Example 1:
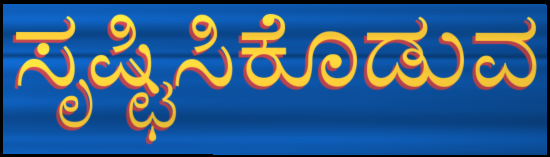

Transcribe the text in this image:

ಸೃಷ್ಟಿಸಿಕೊಡುವ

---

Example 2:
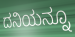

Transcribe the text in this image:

ದನಿಯನ್ನೂ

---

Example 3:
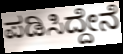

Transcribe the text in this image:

ಪಡಿಸಿದ್ದೇನೆ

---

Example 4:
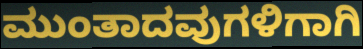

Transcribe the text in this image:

ಮುಂತಾದವುಗಳಿಗಾಗಿ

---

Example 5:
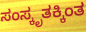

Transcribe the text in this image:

ಸಂಸ್ಕೃತಕ್ಕಿಂತ